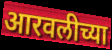
आरवलीच्या